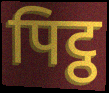
पिट्ठ